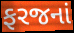
ફરજનાં